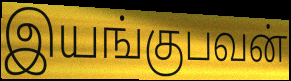
இயங்குபவன்